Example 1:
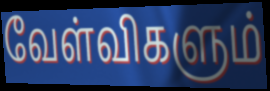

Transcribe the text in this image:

வேள்விகளும்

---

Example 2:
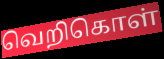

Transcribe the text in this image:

வெறிகொள்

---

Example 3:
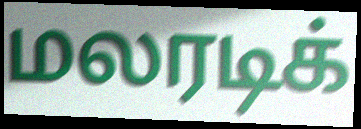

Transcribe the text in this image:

மலரடிக்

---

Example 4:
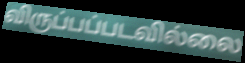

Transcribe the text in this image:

விருப்பப்படவில்லை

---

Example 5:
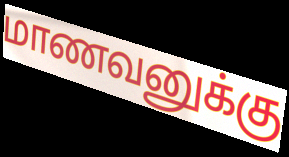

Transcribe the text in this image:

மாணவனுக்கு